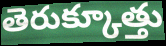
తెరుక్కూత్తు